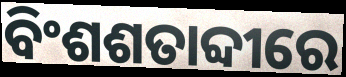
ବିଂଶଶତାବ୍ଦୀରେ